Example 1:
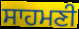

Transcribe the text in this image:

ਸਾਹਮਣੀ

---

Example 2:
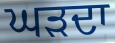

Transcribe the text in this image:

ਘੜਦਾ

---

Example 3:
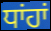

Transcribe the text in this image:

ਧਾਂਹਾਂ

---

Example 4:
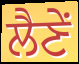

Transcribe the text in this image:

ਲੈਣੇਂ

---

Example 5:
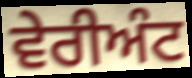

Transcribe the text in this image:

ਵੇਰੀਅੰਟ